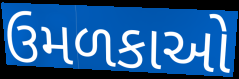
ઉમળકાઓ